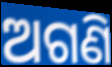
ଅଗଣି